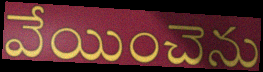
వేయించెను